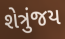
શેત્રુંજય